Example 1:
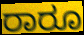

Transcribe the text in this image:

ರಾರೂ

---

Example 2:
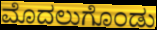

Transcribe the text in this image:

ಮೊದಲುಗೊಂಡು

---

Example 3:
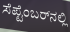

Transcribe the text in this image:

ಸೆಪ್ಟೆಂಬರ್‌ನಲ್ಲಿ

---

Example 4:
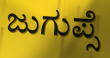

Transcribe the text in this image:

ಜುಗುಪ್ಸೆ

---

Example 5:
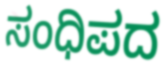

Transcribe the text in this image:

ಸಂಧಿಪದ